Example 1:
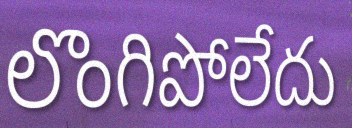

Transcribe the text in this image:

లొంగిపోలేదు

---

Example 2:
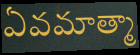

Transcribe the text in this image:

ఏవమాత్మా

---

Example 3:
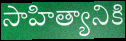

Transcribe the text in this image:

సాహిత్యానికి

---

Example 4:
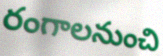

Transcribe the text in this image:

రంగాలనుంచి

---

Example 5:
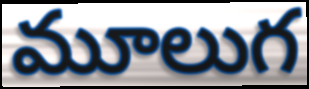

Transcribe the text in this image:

మూలుగ